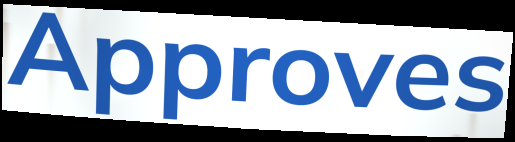
Approves